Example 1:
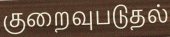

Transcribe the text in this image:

குறைவுபடுதல்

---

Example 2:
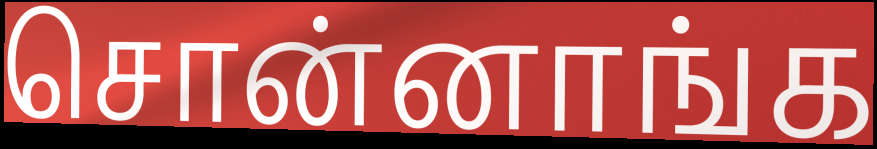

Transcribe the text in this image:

சொன்னாங்க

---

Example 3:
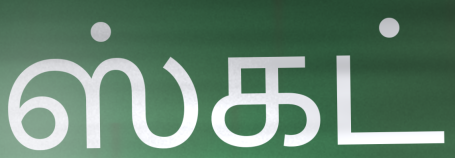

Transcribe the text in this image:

ஸ்கட்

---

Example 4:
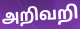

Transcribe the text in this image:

அறிவறி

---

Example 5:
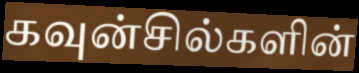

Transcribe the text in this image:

கவுன்சில்களின்